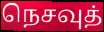
நெசவுத்